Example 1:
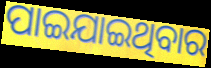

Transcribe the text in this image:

ପାଇଯାଇଥିବାର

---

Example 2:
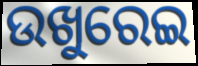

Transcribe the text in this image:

ଉଖୁରେଇ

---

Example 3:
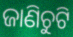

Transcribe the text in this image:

ଜାଣିଚୁଟି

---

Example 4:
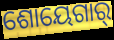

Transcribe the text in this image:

ଶୋୟେଗାର୍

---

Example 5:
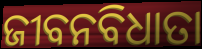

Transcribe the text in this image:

ଜୀବନବିଧାତା